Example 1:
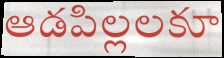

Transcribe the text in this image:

ఆడపిల్లలకూ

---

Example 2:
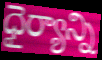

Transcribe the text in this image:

ధైర్యాన్ని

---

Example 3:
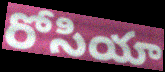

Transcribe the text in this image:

రోసియా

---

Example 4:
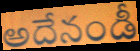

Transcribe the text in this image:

అదేనండీ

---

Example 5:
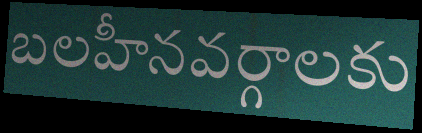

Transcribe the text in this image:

బలహీనవర్గాలకు